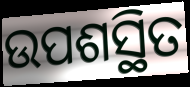
ଉପଶସ୍ଥିତ